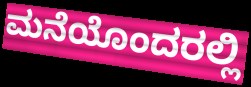
ಮನೆಯೊಂದರಲ್ಲಿ